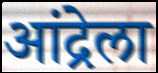
आंद्रेला